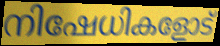
നിഷേധികളോട്